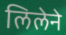
लिलेने